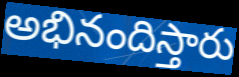
అభినందిస్తారు